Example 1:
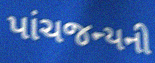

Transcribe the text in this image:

પાંચજન્યની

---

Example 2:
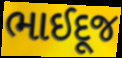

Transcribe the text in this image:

ભાઈદૂજ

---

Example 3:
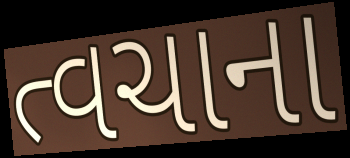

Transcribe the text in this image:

ત્વચાના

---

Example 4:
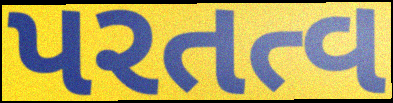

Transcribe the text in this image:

પરતત્વ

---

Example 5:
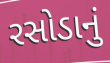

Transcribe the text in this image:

રસોડાનું